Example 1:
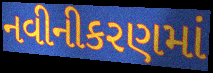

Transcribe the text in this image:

નવીનીકરણમાં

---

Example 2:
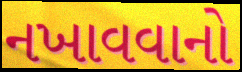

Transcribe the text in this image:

નખાવવાનો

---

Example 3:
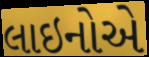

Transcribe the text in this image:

લાઇનોએ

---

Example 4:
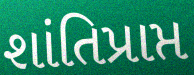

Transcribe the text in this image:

શાંતિપ્રાપ્ત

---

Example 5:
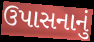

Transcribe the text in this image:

ઉપાસનાનું